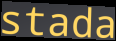
stada